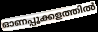
ഓണപ്പൂക്കളത്തിൽ